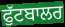
ਫੁੱਟਬਾਲਰ